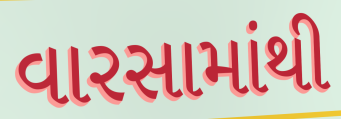
વારસામાંથી